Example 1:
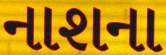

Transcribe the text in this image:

નાશના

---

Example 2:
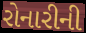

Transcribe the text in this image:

રોનારીની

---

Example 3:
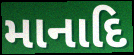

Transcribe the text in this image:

માનાદિ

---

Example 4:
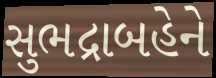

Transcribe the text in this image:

સુભદ્રાબહેને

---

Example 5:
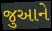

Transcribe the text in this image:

જુઆને